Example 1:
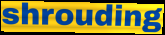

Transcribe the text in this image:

shrouding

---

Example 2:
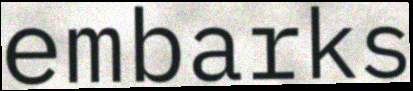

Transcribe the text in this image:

embarks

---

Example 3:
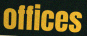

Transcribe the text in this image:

offices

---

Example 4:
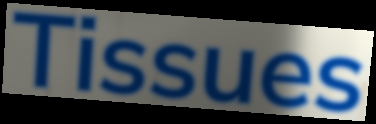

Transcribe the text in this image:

Tissues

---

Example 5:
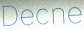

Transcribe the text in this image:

Decne